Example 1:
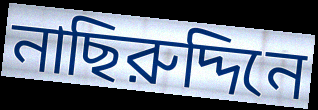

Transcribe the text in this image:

নাছিৰুদ্দিনে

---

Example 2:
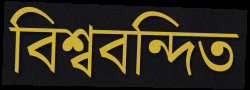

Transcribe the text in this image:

বিশ্ববন্দিত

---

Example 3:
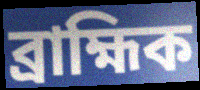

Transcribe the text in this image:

ব্ৰাহ্মিক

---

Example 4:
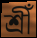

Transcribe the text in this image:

শ্ৰীঁ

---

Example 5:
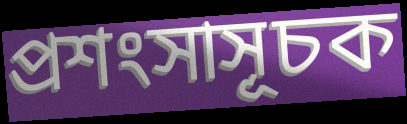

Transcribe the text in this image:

প্ৰশংসাসূচক